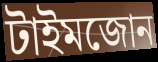
টাইমজোন